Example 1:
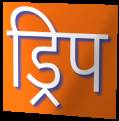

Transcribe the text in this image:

ड्रिप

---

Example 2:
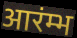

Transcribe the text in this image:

आरंम्भ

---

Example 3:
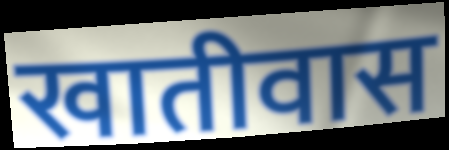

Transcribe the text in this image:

खातीवास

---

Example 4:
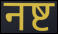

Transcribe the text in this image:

नष्ट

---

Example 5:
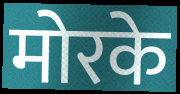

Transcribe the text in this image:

मोरके